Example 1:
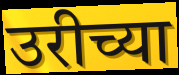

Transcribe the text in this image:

उरीच्या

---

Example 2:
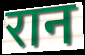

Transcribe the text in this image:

रान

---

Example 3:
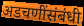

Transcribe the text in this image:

अडचणींसंबंधी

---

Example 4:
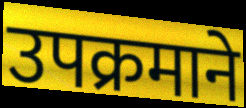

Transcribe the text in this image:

उपक्रमाने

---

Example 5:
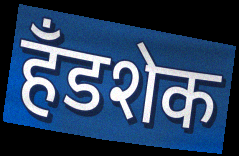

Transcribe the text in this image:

हँडशेक